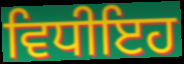
ਵਿਧੀਇਹ